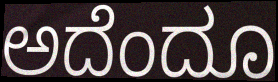
ಅದೆಂದೂ